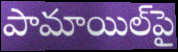
పామాయిల్‌పై